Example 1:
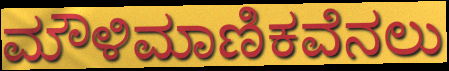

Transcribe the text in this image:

ಮೌಳಿಮಾಣಿಕವೆನಲು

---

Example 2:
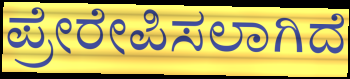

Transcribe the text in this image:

ಪ್ರೇರೇಪಿಸಲಾಗಿದೆ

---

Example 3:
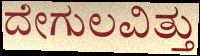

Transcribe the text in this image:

ದೇಗುಲವಿತ್ತು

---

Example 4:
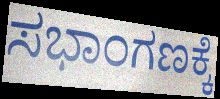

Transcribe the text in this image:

ಸಭಾಂಗಣಕ್ಕೆ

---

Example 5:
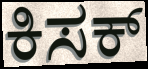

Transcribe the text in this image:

ಕಿಸಕ್